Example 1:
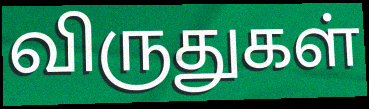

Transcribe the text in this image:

விருதுகள்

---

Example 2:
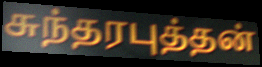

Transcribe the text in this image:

சுந்தரபுத்தன்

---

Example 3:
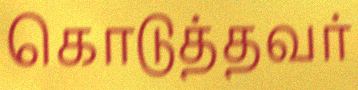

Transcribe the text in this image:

கொடுத்தவர்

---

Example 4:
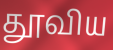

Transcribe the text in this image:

தூவிய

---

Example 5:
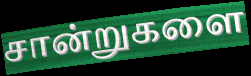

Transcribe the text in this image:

சான்றுகளை